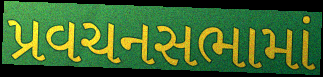
પ્રવચનસભામાં